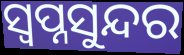
ସ୍ୱପ୍ନସୁନ୍ଦର